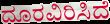
ದೂರವಿರಿಸಿದೆ